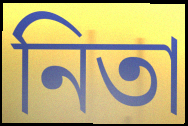
নিতা